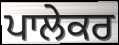
ਪਾਲੇਕਰ